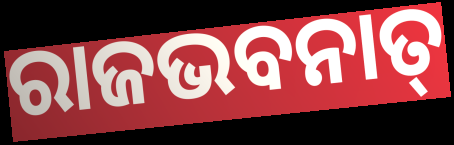
ରାଜଭବନାତ୍